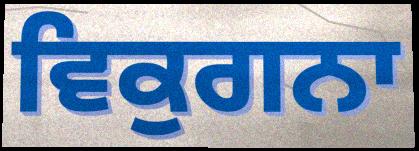
ਵਿਕੁਗਨਾ